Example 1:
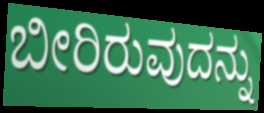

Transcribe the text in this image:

ಬೀರಿರುವುದನ್ನು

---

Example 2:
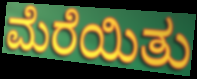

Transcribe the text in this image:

ಮೆರೆಯಿತು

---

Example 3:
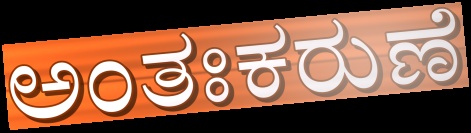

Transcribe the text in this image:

ಅಂತಃಕರುಣೆ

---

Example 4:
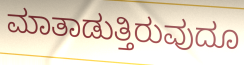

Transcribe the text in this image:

ಮಾತಾಡುತ್ತಿರುವುದೂ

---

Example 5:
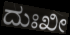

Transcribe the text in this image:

ದುಃಖೀ